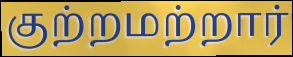
குற்றமற்றார்